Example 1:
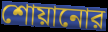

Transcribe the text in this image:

শোয়ানোর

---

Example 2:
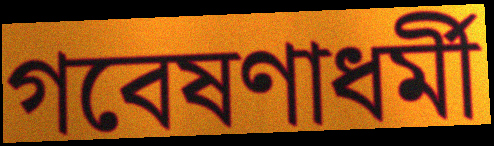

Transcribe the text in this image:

গবেষণাধর্মী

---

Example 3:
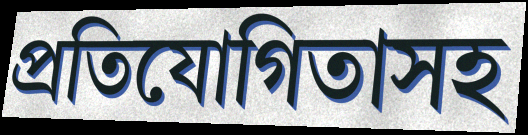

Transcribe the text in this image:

প্রতিযোগিতাসহ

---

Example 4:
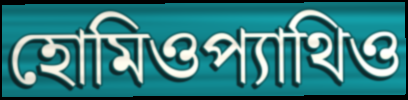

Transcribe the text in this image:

হোমিওপ্যাথিও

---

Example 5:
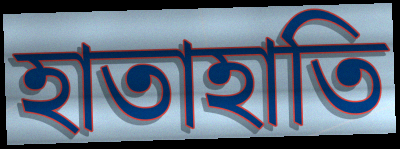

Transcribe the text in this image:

হাতাহাতি